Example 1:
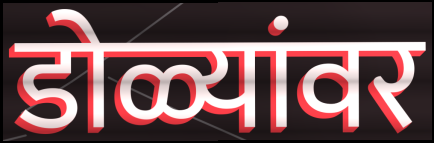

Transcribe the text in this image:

डोळ्यांवर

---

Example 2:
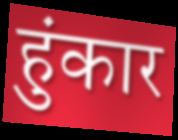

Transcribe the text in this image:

हुंकार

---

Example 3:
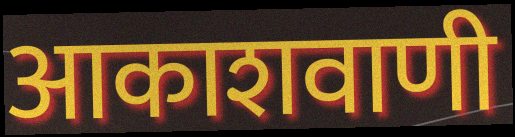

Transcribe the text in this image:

आकाशवाणी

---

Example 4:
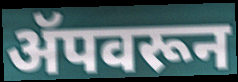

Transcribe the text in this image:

ॲपवरून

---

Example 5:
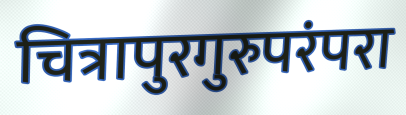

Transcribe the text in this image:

चित्रापुरगुरुपरंपरा